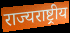
राज्यराष्ट्रीय